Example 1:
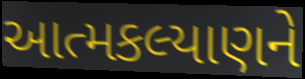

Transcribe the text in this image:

આત્મકલ્યાણને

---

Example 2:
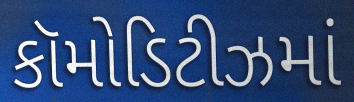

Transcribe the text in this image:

કૉમોડિટીઝમાં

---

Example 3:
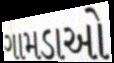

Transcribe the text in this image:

ગામડાઓ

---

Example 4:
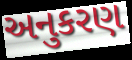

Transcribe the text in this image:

અનુકરણ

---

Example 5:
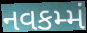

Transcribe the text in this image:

નવકમ્મં